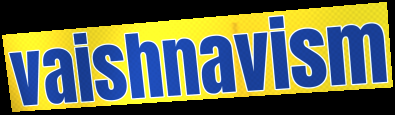
vaishnavism